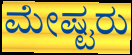
ಮೇಷ್ಟರು